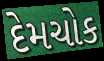
દેમચોક